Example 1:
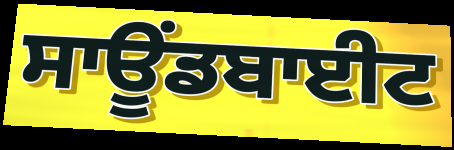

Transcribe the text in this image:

ਸਾਊਂਡਬਾਈਟ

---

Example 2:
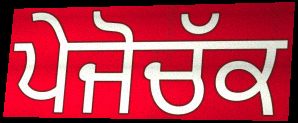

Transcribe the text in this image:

ਪੇਜੋਚੱਕ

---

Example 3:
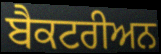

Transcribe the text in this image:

ਬੈਕਟਰੀਅਨ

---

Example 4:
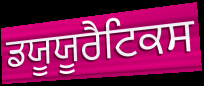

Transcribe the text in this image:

ਡਯੂਯੂਰੈਟਿਕਸ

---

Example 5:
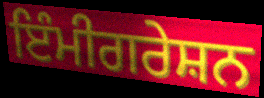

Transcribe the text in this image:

ਇੰਮੀਗਰੇਸ਼ਨ